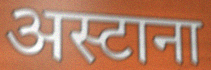
अस्टाना